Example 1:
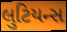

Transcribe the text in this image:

લુટિયન્સ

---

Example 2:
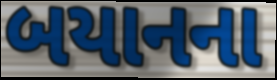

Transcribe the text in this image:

બયાનના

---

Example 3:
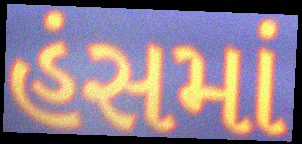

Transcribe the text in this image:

હંસમાં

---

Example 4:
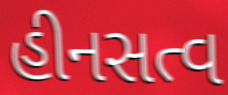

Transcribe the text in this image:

હીનસત્વ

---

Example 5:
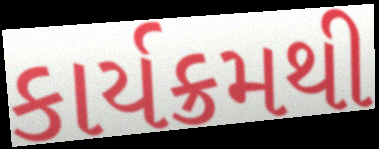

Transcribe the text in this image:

કાર્યક્રમથી